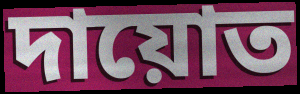
দায়োত